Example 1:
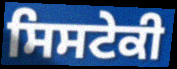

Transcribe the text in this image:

ਸਿਸਟੇਕੀ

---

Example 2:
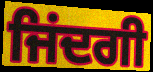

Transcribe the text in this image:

ਜਿਂਦਗੀ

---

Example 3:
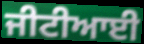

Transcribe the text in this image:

ਜੀਟੀਆਈ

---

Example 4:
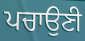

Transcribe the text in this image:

ਪਚਾਉਣੀ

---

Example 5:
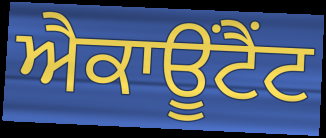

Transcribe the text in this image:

ਐਕਾਊਂਟੈਂਟ